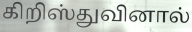
கிறிஸ்துவினால்